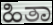
ಹಿತಾ